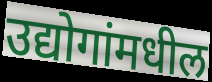
उद्योगांमधील